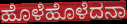
ಹೊಳೆಹೊಳೆದನಾ